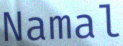
Namal